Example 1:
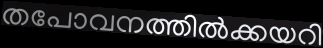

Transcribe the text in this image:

തപോവനത്തിൽക്കയറി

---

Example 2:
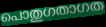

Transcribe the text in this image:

പൊതുഗതാഗത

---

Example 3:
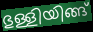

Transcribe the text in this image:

ഭുള്ളിയിങ്ങ്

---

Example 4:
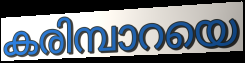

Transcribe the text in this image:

കരിമ്പാറയെ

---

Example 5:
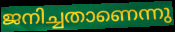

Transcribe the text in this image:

ജനിച്ചതാണെന്നു